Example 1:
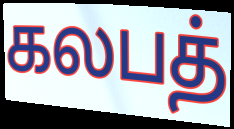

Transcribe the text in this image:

கலபத்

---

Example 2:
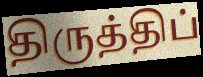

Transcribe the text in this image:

திருத்திப்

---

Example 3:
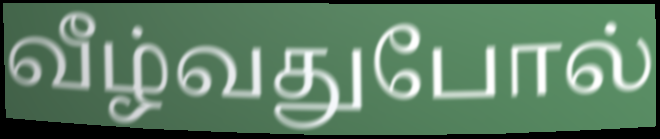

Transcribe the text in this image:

வீழ்வதுபோல்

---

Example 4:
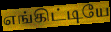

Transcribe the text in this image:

எங்கிட்டியே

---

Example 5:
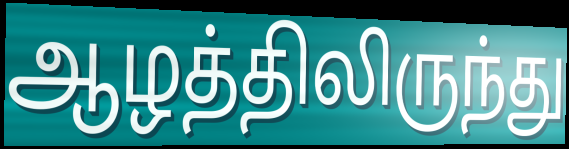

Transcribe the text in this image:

ஆழத்திலிருந்து